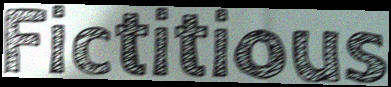
Fictitious